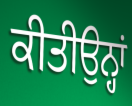
ਕੀਤੀਉਨ੍ਹਾਂ